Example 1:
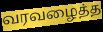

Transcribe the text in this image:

வரவழைத்த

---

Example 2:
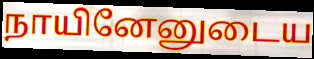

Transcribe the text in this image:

நாயினேனுடைய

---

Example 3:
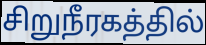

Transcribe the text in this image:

சிறுநீரகத்தில்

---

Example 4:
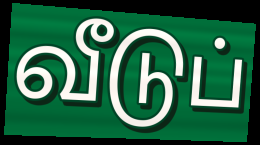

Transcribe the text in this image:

வீடுப்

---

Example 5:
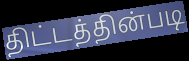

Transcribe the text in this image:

திட்டத்தின்படி